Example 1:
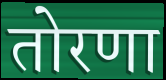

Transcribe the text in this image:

तोरणा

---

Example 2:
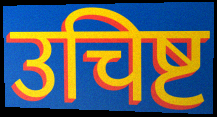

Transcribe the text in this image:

उचिष्ट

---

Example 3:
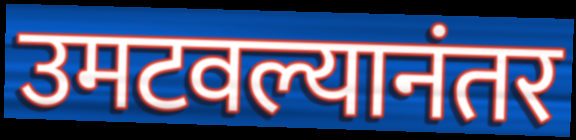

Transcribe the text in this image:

उमटवल्यानंतर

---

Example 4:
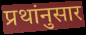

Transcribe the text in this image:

प्रथांनुसार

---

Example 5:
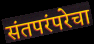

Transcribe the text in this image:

संतपरंपरेचा